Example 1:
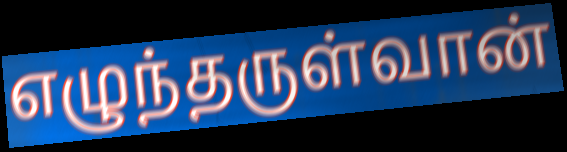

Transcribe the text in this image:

எழுந்தருள்வான்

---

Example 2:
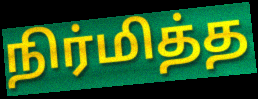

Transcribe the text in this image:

நிர்மித்த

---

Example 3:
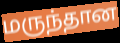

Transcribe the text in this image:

மருந்தான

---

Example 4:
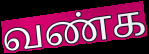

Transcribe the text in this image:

வண்க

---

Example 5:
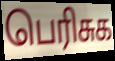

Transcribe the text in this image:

பெரிசுக